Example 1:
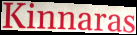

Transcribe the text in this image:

Kinnaras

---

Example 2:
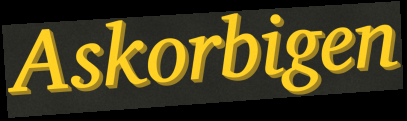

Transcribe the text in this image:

Askorbigen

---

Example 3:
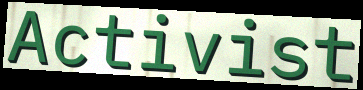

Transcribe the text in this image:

Activist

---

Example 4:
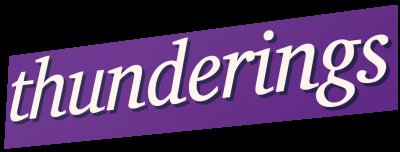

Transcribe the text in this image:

thunderings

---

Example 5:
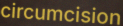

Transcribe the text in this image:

circumcision